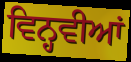
ਵਿਨ੍ਹਵੀਆਂ